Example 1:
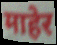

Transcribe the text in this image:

माहेर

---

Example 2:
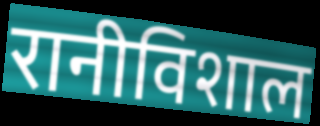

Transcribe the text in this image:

रानीविशाल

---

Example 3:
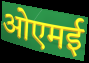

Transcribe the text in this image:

ओएमई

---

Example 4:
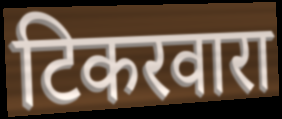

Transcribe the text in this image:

टिकरवारा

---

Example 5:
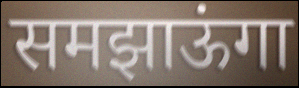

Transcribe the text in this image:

समझाऊंगा